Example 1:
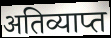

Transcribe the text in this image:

अतिव्याप्त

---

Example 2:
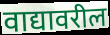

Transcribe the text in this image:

वाद्यावरील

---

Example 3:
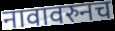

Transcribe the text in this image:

नावावरुनच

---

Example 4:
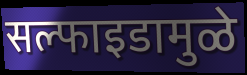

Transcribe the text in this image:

सल्फाइडामुळे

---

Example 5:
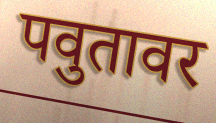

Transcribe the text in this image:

पवुतावर